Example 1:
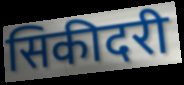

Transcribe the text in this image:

सिकीदरी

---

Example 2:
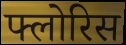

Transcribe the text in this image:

फ्लोरिस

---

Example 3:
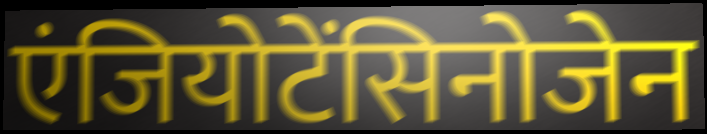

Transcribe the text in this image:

एंजियोटेंसिनोजेन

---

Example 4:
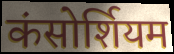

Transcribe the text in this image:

कंसोर्शियम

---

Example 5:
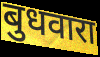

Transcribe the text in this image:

बुधवारा